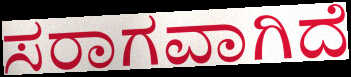
ಸರಾಗವಾಗಿದೆ